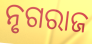
ନୃଗରାଜ